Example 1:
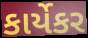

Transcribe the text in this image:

કાર્યેકર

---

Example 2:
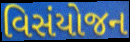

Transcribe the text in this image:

વિસંયોજન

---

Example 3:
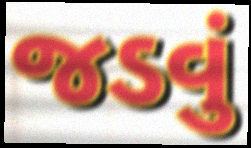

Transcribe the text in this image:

જડવું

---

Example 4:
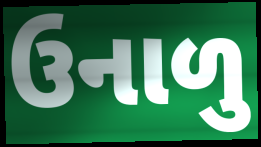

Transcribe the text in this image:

ઉનાળુ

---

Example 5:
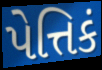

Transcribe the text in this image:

પેત્તિકં